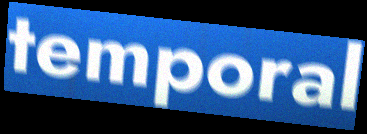
temporal